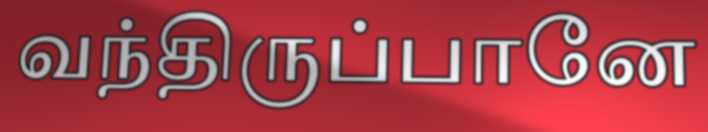
வந்திருப்பானே